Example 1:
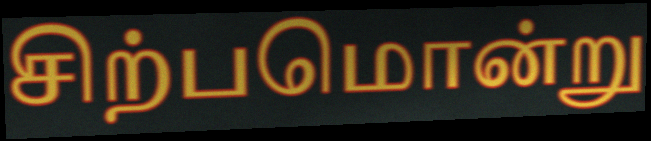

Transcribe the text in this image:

சிற்பமொன்று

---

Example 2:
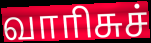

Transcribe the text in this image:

வாரிசுச்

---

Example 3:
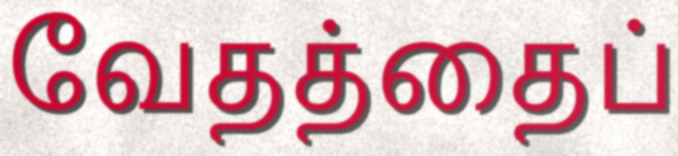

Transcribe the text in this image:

வேதத்தைப்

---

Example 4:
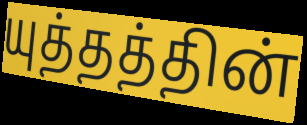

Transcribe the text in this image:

யுத்தத்தின்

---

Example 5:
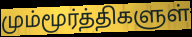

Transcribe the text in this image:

மும்மூர்த்திகளுள்